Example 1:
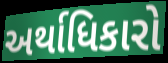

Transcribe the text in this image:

અર્થાધિકારો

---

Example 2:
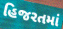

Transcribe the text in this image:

હિજરતમાં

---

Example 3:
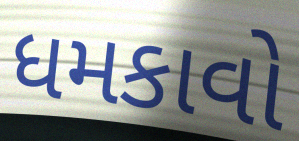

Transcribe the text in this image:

ધમકાવો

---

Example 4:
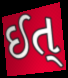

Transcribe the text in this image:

ઈત્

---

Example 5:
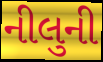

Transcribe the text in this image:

નીલુની